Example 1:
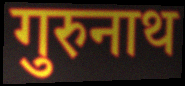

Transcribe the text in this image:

गुरुनाथ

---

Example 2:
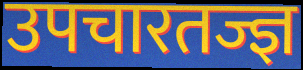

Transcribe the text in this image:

उपचारतज्ज्ञ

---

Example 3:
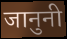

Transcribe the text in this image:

जानुनी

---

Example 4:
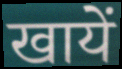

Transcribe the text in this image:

खायें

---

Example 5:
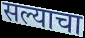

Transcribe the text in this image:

सल्याचा